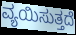
ವ್ಯಯಿಸುತ್ತದೆ